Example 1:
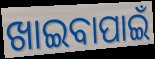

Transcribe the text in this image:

ଖାଇବାପାଇଁ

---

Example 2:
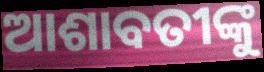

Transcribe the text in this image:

ଆଶାବତୀଙ୍କୁ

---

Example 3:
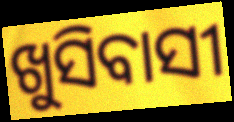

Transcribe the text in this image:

ଖୁସିବାସୀ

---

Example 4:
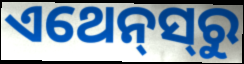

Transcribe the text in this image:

ଏଥେନ୍‌ସ୍‌ରୁ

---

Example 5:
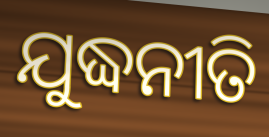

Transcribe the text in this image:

ଯୁଦ୍ଧନୀତି